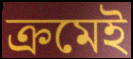
ক্রমেই